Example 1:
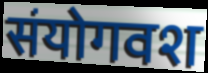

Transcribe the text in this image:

संयोगवश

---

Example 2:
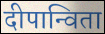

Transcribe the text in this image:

दीपान्विता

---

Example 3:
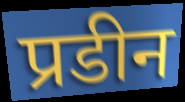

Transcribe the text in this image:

प्रडीन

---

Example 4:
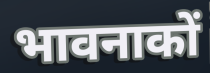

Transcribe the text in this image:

भावनाकों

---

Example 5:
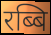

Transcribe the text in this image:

रब्बि